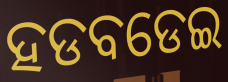
ହଡବଡେଇ